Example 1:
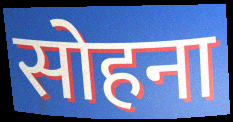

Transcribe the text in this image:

सोहना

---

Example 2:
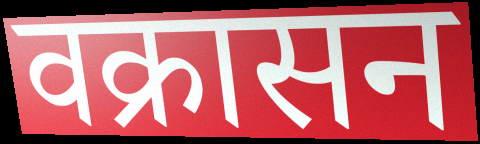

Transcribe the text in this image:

वक्रासन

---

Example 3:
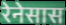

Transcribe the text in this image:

रेनेसास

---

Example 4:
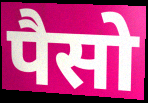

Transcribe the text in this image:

पैसो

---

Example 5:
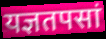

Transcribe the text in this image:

यज्ञतपसां